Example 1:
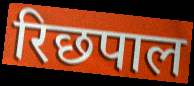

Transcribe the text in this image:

रिछपाल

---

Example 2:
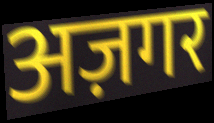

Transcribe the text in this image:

अज़गर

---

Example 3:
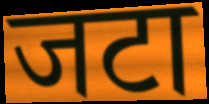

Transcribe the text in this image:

जटा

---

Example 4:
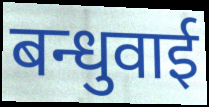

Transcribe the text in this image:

बन्धुवाई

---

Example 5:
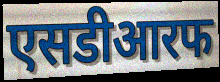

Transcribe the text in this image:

एसडीआरफ